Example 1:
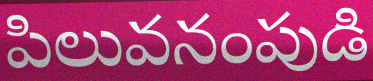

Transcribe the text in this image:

పిలువనంపుడి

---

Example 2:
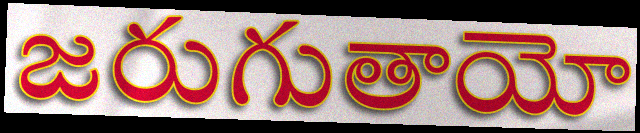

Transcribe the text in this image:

జరుగుతాయో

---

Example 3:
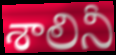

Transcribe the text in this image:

శాలినీ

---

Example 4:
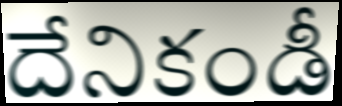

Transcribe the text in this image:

దేనికండీ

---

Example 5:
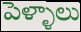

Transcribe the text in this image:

పెళ్ళాలు